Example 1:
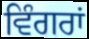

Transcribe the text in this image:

ਵਿੰਗਰਾਂ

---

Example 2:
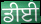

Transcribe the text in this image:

ਡੀਈ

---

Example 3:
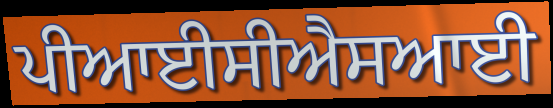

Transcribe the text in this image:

ਪੀਆਈਸੀਐਸਆਈ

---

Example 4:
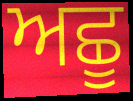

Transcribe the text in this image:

ਅਛੂ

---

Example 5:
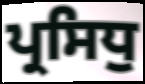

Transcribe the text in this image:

ਪ੍ਰਸਿਧੁ